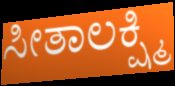
ಸೀತಾಲಕ್ಷ್ಮಿ